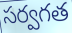
సర్వగత